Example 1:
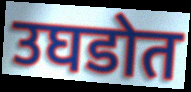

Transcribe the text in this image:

उघडोत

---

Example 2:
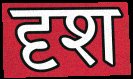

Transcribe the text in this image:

दृश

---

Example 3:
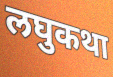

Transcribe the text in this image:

लघुकथा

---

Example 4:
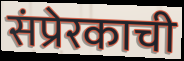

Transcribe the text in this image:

संप्रेरकाची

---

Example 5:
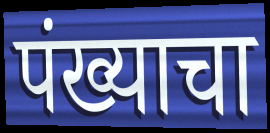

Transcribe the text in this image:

पंख्याचा